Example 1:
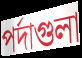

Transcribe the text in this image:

পর্দাগুলা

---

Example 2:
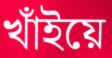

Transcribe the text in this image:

খাঁইয়ে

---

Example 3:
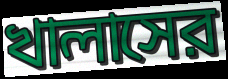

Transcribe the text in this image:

খালাসের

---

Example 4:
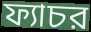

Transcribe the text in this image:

ফ্যাচর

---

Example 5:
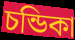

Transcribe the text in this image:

চন্ডিকা